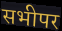
सभीपर